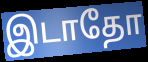
இடாதோ